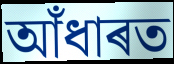
আঁধাৰত